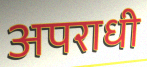
अपराधी